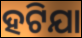
ହଟିଯା